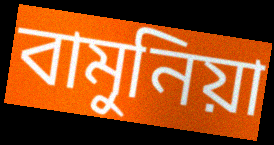
বামুনিয়া